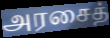
அரசைத்